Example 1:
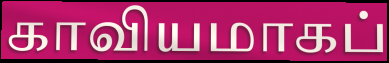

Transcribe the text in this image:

காவியமாகப்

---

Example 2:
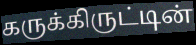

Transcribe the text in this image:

கருக்கிருட்டின்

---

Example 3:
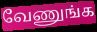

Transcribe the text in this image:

வேணுங்க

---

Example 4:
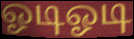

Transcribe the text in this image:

ஓடிஓடி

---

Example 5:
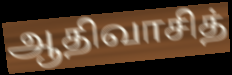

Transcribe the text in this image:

ஆதிவாசித்